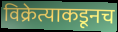
विक्रेत्याकडूनच